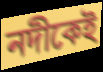
নদীকেই